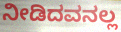
ನೀಡಿದವನಲ್ಲ